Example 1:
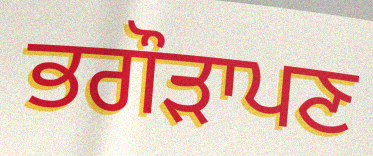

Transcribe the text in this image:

ਭਗੌੜਾਪਣ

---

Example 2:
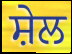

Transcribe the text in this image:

ਸ਼ੇਲ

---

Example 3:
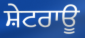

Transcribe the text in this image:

ਸ਼ੇਟਰਾਊ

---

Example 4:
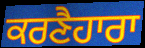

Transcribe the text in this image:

ਕਰਣੈਹਾਰਾ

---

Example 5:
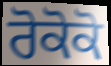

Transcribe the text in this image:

ਰੋਕੋਕੋ